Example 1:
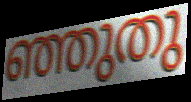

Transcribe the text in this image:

ഞ്ഞുതു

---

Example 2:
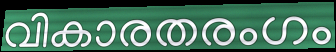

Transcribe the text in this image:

വികാരതരംഗം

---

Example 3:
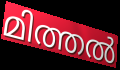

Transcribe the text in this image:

മിത്തൽ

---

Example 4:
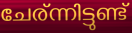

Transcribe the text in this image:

ചേര്ന്നിട്ടുണ്ട്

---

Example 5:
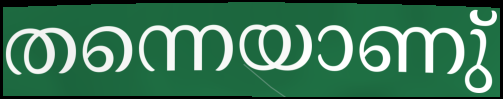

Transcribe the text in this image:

തന്നെയാണു്